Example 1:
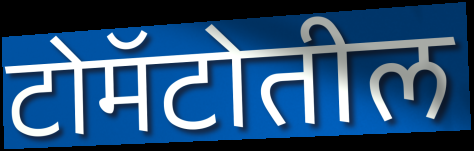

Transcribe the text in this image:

टोमॅटोतील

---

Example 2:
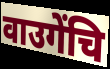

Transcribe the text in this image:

वाउगेंचि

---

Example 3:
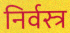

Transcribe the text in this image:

निर्वस्त्र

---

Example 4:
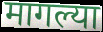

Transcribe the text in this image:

मागल्या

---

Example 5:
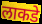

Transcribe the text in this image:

लाकडे